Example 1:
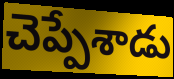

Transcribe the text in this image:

చెప్పేశాడు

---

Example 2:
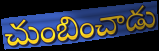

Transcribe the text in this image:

చుంబించాడు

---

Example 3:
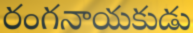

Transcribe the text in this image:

రంగనాయకుడు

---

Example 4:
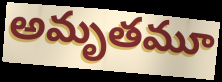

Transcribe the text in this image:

అమృతమూ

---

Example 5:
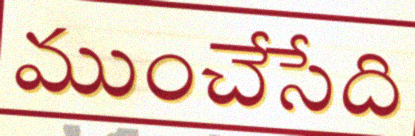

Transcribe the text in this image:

ముంచేసేది